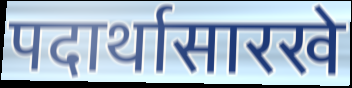
पदार्थासारखे